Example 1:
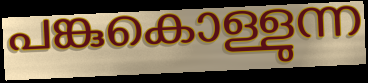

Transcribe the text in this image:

പങ്കുകൊള്ളുന്ന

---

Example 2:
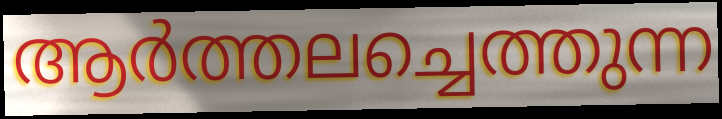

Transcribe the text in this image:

ആർത്തലച്ചെത്തുന്ന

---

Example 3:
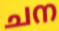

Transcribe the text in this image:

ചന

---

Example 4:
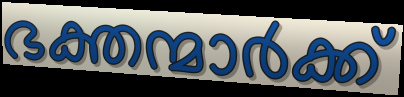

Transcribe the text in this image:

ഭക്തന്മാർക്ക്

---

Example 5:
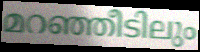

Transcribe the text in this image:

മറഞ്ഞീടിലും